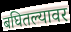
बघितल्यावर